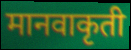
मानवाकृती